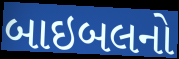
બાઇબલનો